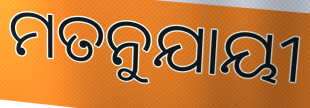
ମତନୁଯାୟୀ